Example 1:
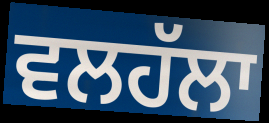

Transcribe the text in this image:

ਵਲਹੱਲਾ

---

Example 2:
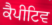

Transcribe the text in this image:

ਕੈਪੀਟਿਵ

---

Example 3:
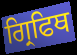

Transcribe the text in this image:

ਗ੍ਰਿਫਿਥ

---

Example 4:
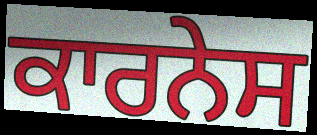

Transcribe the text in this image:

ਕਾਰਨੇਸ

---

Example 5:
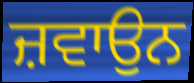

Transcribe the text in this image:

ਜ਼ਵਾਉਨ